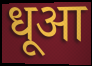
धूआ